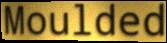
Moulded